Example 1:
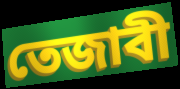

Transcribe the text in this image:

তেজাবী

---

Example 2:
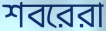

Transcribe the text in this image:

শবরেরা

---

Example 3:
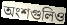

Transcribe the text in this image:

অংশগুলিও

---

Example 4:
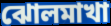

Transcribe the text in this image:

ঝোলমাখা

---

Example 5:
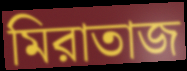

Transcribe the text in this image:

মিরাতাজ